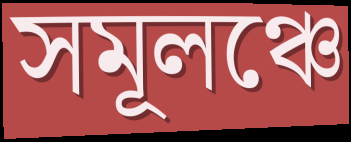
সমূলঞ্চে